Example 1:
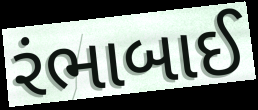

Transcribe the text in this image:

રંભાબાઈ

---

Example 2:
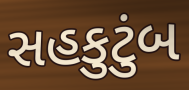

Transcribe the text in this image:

સહકુટુંબ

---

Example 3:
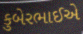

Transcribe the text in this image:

કુબેરભાઈએ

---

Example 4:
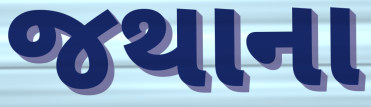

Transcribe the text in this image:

જથાના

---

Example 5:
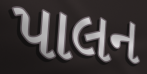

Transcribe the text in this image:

પાલન